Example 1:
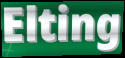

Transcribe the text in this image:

Elting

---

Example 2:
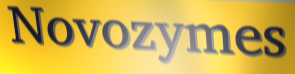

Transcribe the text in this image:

Novozymes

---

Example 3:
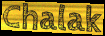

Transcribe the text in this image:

Chalak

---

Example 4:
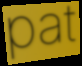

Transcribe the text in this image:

pat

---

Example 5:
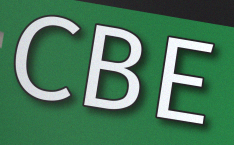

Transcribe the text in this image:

CBE